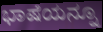
ಭಾಷೆಯನ್ನೂ